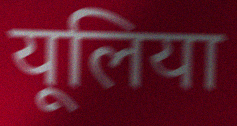
यूलिया